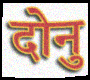
दोनु